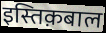
इस्तिक़बाल